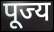
पूज्य